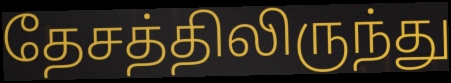
தேசத்திலிருந்து